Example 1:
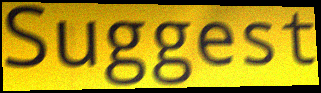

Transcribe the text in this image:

Suggest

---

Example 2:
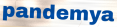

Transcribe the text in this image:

pandemya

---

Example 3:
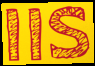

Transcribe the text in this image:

IIS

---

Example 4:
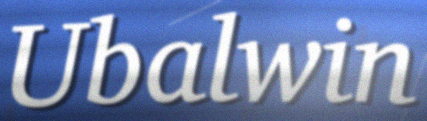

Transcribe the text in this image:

Ubalwin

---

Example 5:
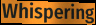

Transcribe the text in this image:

Whispering